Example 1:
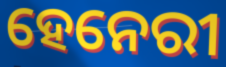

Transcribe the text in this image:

ହେନେରୀ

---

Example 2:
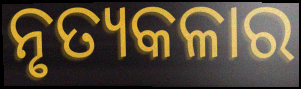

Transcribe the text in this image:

ନୃତ୍ୟକଳାର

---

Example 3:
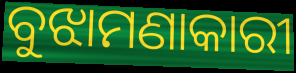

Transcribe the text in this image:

ବୁଝାମଣାକାରୀ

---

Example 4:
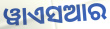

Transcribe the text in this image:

ୱାଏସଆର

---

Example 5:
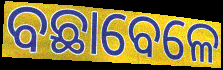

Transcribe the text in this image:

ବଛାବେଳେ